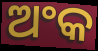
ଅଂକ